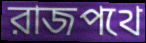
রাজপথে